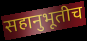
सहानुभूतीच